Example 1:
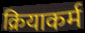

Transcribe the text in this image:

क्रियाकर्म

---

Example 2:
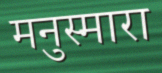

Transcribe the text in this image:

मनुस्मारा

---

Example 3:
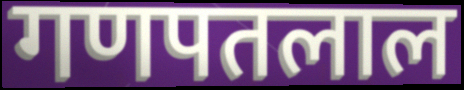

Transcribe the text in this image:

गणपतलाल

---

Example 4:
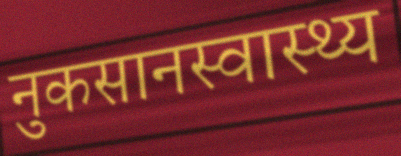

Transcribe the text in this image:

नुकसानस्वास्थ्य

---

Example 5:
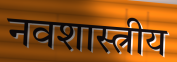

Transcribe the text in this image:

नवशास्त्रीय